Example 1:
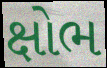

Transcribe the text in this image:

ક્ષોભ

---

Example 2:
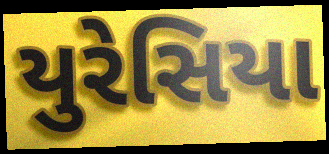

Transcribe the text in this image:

યુરેસિયા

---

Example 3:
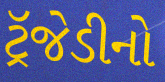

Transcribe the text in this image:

ટ્રૅજેડીનો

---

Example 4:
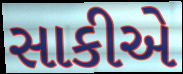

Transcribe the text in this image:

સાકીએ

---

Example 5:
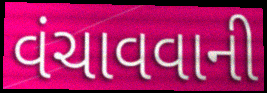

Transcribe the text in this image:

વંચાવવાની